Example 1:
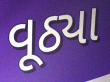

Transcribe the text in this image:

વૂઠ્યા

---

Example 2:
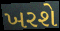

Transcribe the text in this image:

ખરશે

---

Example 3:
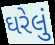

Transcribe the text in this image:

ઘરેલું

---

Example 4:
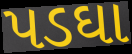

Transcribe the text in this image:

પડઘા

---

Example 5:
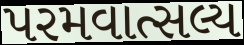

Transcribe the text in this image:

પરમવાત્સલ્ય